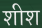
शीश